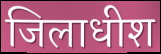
जिलाधीश